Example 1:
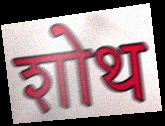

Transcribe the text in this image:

शोथ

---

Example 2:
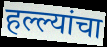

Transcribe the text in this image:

हल्ल्यांचा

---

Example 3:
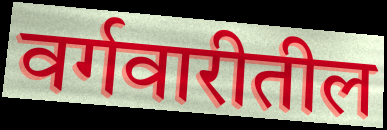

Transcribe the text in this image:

वर्गवारीतील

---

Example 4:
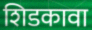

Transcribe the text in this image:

शिडकावा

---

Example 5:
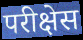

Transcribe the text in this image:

परीक्षेस